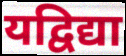
यद्विद्या